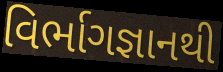
વિર્ભાગજ્ઞાનથી